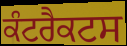
ਕੰਟਰੈਕਟਸ